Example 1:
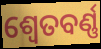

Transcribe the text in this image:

ଶ୍ୱେତବର୍ଣ୍ଣ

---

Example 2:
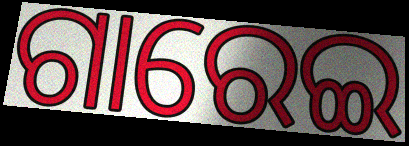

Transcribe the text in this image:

ଗାରେଇ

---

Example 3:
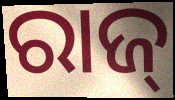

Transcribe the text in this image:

ରାଜ୍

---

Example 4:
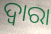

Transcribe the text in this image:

ଦ୍ଵାରା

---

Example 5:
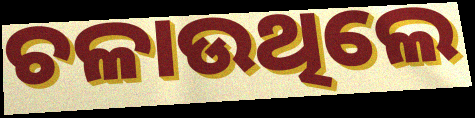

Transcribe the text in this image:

ଚଳାଉଥିଲେ